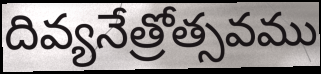
దివ్యనేత్రోత్సవము